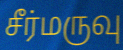
சீர்மருவு